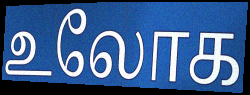
உலோக